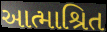
આત્માશ્રિત